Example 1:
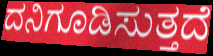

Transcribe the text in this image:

ದನಿಗೂಡಿಸುತ್ತದೆ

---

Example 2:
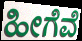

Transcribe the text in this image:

ಹೀಗೆವೆ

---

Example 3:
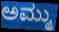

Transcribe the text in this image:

ಅಮ್ಮು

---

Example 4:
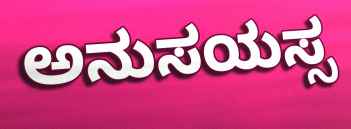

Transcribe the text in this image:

ಅನುಸಯಸ್ಸ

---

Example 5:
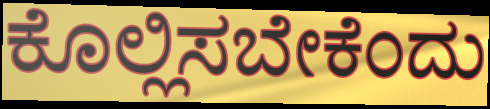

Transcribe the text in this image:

ಕೊಲ್ಲಿಸಬೇಕೆಂದು